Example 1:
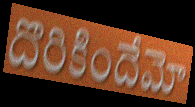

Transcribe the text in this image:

దొరికిందేమో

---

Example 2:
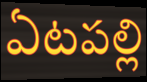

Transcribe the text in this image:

ఏటపల్లి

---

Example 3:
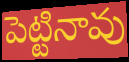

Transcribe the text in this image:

పెట్టినావు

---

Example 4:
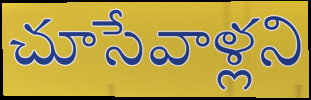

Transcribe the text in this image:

చూసేవాళ్లని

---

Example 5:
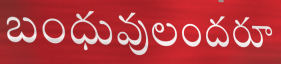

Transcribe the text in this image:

బంధువులందరూ